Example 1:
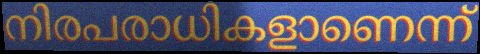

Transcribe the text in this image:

നിരപരാധികളാണെന്ന്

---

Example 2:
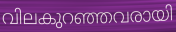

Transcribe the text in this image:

വിലകുറഞ്ഞവരായി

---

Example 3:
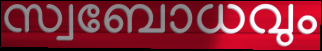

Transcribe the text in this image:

സ്വബോധവും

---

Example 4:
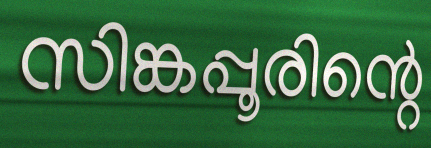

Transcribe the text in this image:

സിങ്കപ്പൂരിന്റെ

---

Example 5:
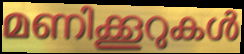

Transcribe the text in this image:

മണിക്കൂറുകൾ